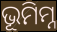
ଭୂମିମ୍ନ